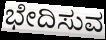
ಭೇದಿಸುವ